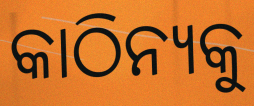
କାଠିନ୍ୟକୁ